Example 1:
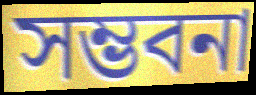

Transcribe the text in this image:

সম্ভবনা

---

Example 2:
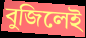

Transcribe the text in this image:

বুজিলেই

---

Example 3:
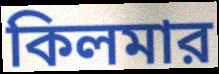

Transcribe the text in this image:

কিলমার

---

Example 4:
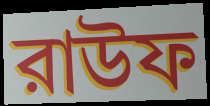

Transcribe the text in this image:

রাউফ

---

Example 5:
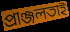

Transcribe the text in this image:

প্রাঞ্জলতাই